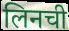
लिनची